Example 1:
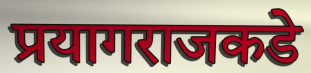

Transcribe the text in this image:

प्रयागराजकडे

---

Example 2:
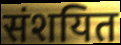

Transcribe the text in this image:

संशयित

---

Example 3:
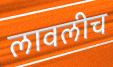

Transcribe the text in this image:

लावलीच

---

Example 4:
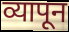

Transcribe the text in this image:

व्यापून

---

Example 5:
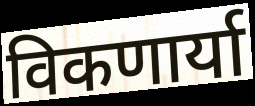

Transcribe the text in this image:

विकणार्या